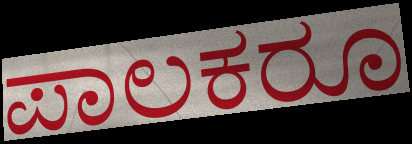
ಪಾಲಕರೂ